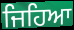
ਜਿਹਿਆ